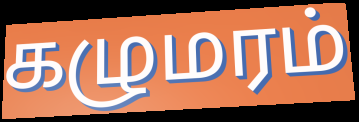
கழுமரம்